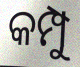
କମ୍ପୁ